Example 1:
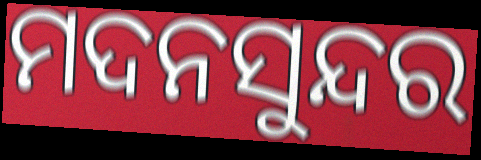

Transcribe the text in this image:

ମଦନସୁନ୍ଦର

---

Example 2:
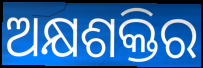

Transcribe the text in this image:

ଅକ୍ଷଶକ୍ତିର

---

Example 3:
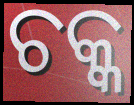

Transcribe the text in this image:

ଚକ୍କ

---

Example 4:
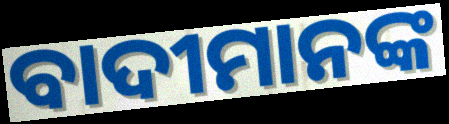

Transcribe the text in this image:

ବାଦୀମାନଙ୍କ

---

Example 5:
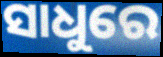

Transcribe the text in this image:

ସାଧୁରେ